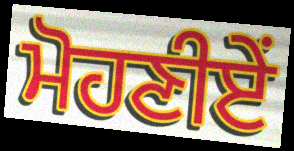
ਮੋਹਣੀਏਂ